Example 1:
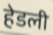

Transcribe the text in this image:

हेडली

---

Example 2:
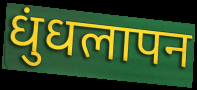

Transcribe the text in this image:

धुंधलापन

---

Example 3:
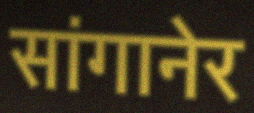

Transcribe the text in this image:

सांगानेर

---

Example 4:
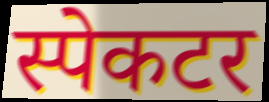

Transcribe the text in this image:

स्पेकटर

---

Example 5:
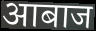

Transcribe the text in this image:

आबाज